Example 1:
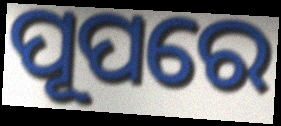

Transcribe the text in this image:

ପୂପରେ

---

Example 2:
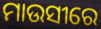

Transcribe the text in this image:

ମାଉସୀରେ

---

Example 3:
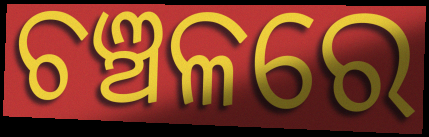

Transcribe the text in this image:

ଚଞ୍ଚଳରେ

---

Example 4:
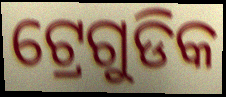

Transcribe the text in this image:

ଟ୍ରେଗୁଡିକ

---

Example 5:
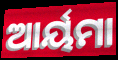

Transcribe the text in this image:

ଆର୍ୟମା